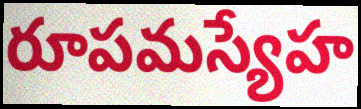
రూపమస్యేహ